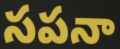
సపనా